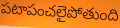
పటాపంచలైపోతుంది